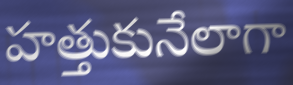
హత్తుకునేలాగా